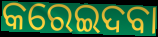
କରେଇଦବା